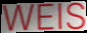
WEIS